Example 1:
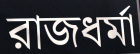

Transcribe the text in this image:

রাজধর্মা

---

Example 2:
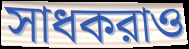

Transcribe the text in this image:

সাধকরাও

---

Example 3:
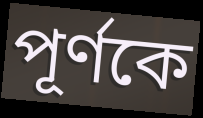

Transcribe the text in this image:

পূর্ণকে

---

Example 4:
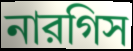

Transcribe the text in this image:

নারগিস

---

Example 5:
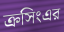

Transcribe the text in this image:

ক্রসিংএর